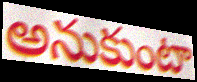
అనుకుంటా